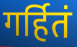
गर्हितं